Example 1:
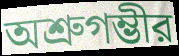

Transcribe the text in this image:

অশ্রুগম্ভীর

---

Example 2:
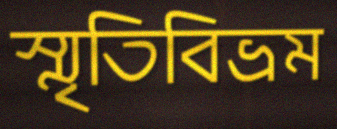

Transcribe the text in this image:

স্মৃতিবিভ্রম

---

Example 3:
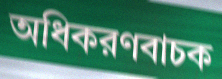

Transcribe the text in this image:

অধিকরণবাচক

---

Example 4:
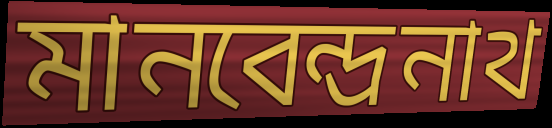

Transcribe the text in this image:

মানবেন্দ্রনাথ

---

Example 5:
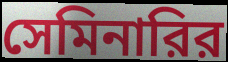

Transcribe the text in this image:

সেমিনারির